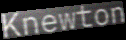
Knewton